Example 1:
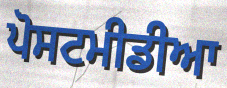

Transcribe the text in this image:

ਪੋਸਟਮੀਡੀਆ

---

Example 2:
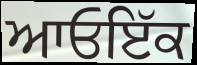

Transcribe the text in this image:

ਆਓਇੱਕ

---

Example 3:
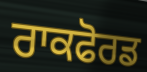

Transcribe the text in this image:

ਰਾਕਫੋਰਡ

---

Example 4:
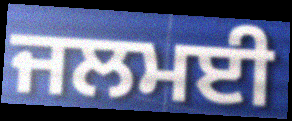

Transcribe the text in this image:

ਜਲਮਈ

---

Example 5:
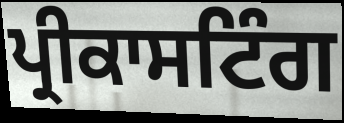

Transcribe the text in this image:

ਪ੍ਰੀਕਾਸਟਿੰਗ